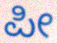
ಪೀ